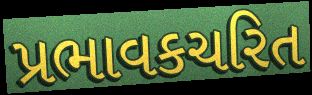
પ્રભાવકચરિત